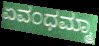
ಏವಂಧಮ್ಮಾ